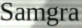
Samgra